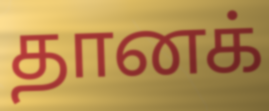
தானக்